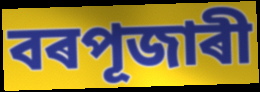
বৰপূজাৰী